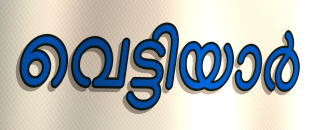
വെട്ടിയാർ